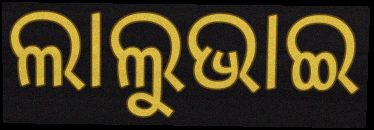
ଲାଲୁଭାଇ